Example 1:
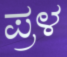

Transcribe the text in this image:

ಪ್ರಳ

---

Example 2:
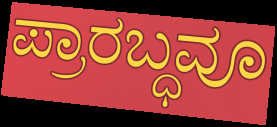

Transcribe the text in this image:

ಪ್ರಾರಬ್ಧವೂ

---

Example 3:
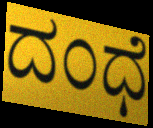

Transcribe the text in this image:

ದಂಧೆ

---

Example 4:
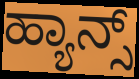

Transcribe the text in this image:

ಹ್ಯಾನ್ಸ್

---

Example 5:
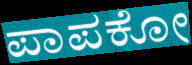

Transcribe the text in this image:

ಪಾಪಕೋ